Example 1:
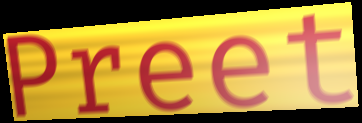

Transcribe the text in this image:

Preet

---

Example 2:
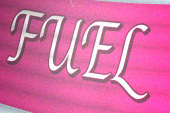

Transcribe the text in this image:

FUEL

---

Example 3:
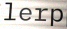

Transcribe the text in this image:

lerp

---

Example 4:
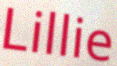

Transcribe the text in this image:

Lillie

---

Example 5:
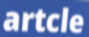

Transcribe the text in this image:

artcle